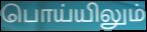
பொய்யிலும்